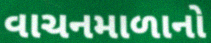
વાચનમાળાનો